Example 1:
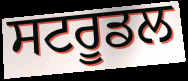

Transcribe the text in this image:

ਸਟਰੂਡਲ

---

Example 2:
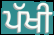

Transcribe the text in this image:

ਪੱਖੀ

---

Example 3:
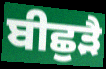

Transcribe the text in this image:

ਬੀਛੁੜੈ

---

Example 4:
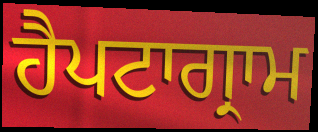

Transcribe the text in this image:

ਹੈਪਟਾਗ੍ਰਾਮ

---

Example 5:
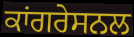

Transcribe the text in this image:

ਕਾਂਗਰੇਸਨਲ